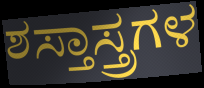
ಶಸ್ತಾಸ್ತ್ರಗಳ